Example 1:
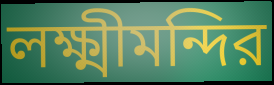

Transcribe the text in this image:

লক্ষ্মীমন্দির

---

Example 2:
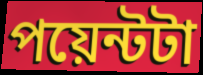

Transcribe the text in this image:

পয়েন্টটা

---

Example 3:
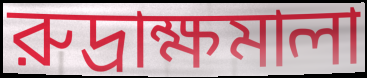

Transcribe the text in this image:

রুদ্রাক্ষমালা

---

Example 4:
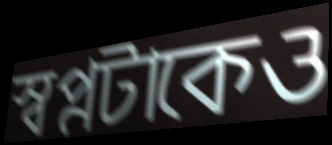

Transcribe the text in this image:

স্বপ্নটাকেও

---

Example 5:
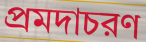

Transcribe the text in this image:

প্রমদাচরণ